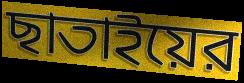
ছাতাইয়ের